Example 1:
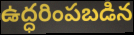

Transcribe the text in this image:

ఉద్ధరింపబడిన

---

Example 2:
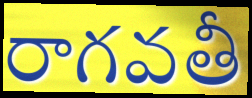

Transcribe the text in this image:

రాగవతీ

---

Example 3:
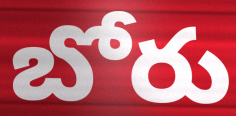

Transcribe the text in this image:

బోరు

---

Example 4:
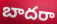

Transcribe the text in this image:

బాదరా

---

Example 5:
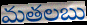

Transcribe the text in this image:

మతలబు